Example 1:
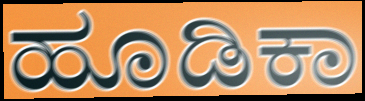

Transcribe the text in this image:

ಹೂಡಿಕಾ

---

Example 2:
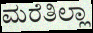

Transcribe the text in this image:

ಮರೆತಿಲ್ಲಾ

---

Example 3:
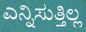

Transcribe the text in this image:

ಎನ್ನಿಸುತ್ತಿಲ್ಲ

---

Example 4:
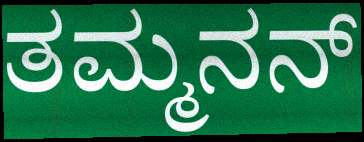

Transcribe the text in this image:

ತಮ್ಮನನ್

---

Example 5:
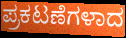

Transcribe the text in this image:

ಪ್ರಕಟಣೆಗಳಾದ